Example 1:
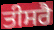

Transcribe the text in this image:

ਤੀਸਰੈ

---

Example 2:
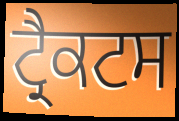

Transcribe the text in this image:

ਟ੍ਰੈਕਟਸ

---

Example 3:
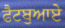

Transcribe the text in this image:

ਫੈਟਬੁਆਏ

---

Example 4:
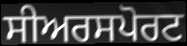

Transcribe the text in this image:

ਸੀਅਰਸਪੋਰਟ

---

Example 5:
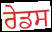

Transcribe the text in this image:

ਰੇਡਸ